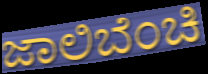
ಜಾಲಿಬೆಂಚಿ